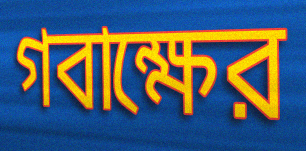
গবাক্ষের